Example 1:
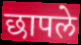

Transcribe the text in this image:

छापले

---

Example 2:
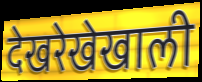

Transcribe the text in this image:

देखरेखेखाली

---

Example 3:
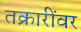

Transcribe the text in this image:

तक्रारींवर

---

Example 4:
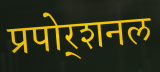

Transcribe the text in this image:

प्रपोर्शनल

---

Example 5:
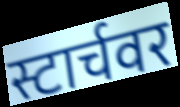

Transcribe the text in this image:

स्टार्चवर